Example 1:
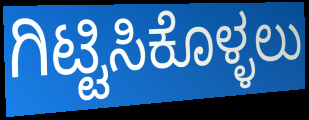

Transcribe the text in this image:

ಗಿಟ್ಟಿಸಿಕೊಳ್ಳಲು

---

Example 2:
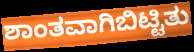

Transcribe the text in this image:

ಶಾಂತವಾಗಿಬಿಟ್ಟಿತು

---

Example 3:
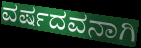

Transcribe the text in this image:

ವರ್ಷದವನಾಗಿ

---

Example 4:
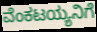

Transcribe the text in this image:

ವೆಂಕಟಯ್ಯನಿಗೆ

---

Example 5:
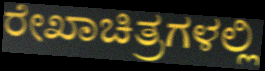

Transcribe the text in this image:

ರೇಖಾಚಿತ್ರಗಳಲ್ಲಿ